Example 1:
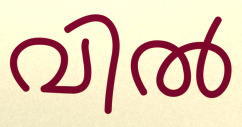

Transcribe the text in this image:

വിൽ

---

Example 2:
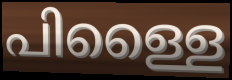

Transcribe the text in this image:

പിള്ളൈ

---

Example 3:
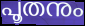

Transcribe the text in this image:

പൂതനും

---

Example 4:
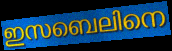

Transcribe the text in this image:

ഇസബെലിനെ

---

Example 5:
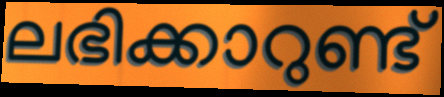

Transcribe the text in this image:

ലഭിക്കാറുണ്ട്